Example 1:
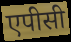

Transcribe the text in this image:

एपीसी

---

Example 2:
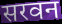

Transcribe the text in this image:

सरवन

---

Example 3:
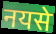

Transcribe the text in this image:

नयसे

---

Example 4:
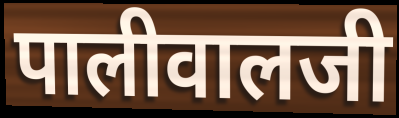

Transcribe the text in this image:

पालीवालजी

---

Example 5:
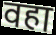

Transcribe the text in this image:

वहा